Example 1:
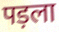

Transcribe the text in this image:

पड़ला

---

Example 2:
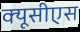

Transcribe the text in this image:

क्यूसीएस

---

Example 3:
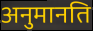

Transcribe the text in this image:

अनुमानति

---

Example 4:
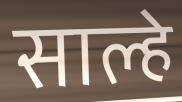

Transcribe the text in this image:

साल्हे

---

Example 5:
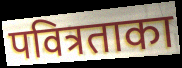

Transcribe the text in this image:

पवित्रताका